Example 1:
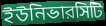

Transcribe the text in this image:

ইউনিভারসিটি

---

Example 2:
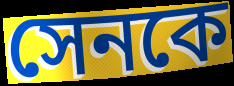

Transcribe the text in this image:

সেনকে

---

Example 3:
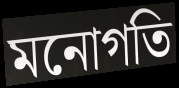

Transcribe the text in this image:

মনোগতি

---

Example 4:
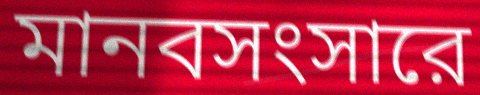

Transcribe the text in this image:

মানবসংসারে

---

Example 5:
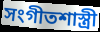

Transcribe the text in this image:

সংগীতশাস্ত্রী